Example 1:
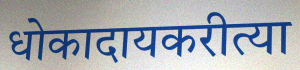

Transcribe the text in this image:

धोकादायकरीत्या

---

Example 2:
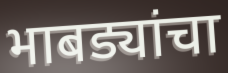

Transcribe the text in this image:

भाबड्यांचा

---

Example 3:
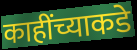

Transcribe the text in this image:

काहींच्याकडे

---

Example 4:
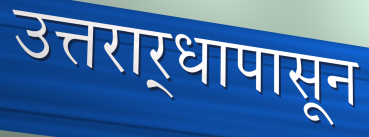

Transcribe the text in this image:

उत्तरार्धापासून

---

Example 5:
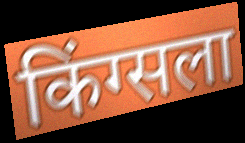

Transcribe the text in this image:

किंग्सला